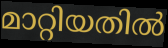
മാറ്റിയതിൽ